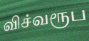
விச்வரூப